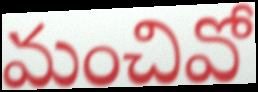
మంచివో